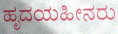
ಹೃದಯಹೀನರು